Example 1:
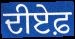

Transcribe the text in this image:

ਦੀਏਫ਼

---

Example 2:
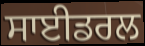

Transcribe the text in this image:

ਸਾਈਡਰਲ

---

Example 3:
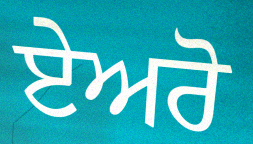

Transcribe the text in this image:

ਏਅਰੋ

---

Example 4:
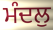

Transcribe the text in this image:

ਮੰਦਲੁ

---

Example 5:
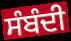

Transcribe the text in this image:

ਸੰਬੰਦੀ